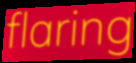
flaring